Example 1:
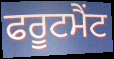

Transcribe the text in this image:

ਫਰੂਟਮੈਂਟ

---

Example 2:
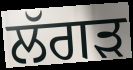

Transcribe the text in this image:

ਲੱਗੜ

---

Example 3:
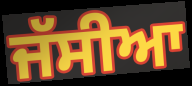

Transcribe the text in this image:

ਜੱਸੀਆ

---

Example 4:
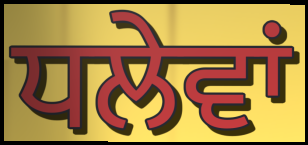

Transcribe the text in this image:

ਧਲੇਵਾਂ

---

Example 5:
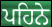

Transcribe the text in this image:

ਪਹਿਨੇ